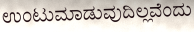
ಉಂಟುಮಾಡುವುದಿಲ್ಲವೆಂದು